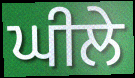
ਘੀਲੇ